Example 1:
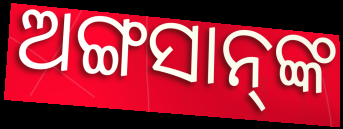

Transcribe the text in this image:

ଅଙ୍ଗସାନ୍‌ଙ୍କ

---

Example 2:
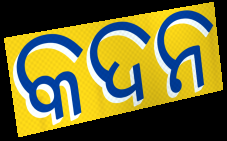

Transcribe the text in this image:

କଦନ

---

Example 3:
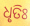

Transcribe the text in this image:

ଧୃତିଃ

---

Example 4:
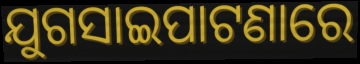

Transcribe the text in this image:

ଯୁଗସାଇପାଟଣାରେ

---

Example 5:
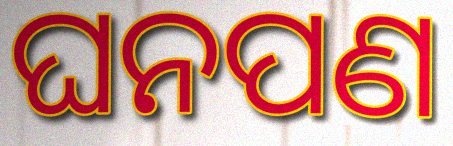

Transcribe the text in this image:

ଘନପଣ